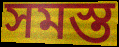
সমস্ত